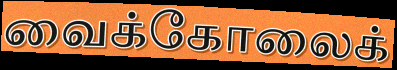
வைக்கோலைக்